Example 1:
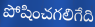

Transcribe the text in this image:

పోషించగలిగేది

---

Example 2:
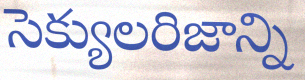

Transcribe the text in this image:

సెక్యులరిజాన్ని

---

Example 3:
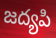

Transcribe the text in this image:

జద్యపి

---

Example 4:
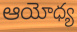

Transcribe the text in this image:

ఆయోధ్య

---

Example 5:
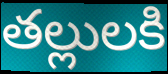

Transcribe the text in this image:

తల్లులకి